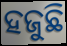
ହଜୁଛି